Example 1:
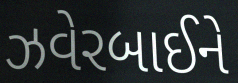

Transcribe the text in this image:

ઝવેરબાઈને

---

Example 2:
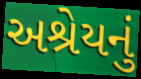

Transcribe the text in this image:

અશ્રેયનું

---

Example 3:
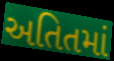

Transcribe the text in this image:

અતિતમાં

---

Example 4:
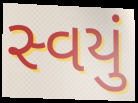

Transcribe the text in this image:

સ્વયું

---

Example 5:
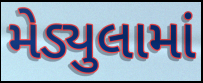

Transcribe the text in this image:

મેડ્યુલામાં